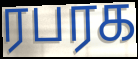
ரபரக